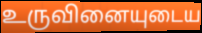
உருவினையுடைய